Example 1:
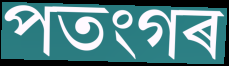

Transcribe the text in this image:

পতংগৰ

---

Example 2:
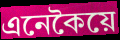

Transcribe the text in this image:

এনেকৈয়ে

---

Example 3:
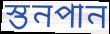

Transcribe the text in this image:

স্তনপান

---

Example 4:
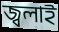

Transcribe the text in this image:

জ্বলাই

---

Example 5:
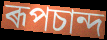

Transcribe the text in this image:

ৰূপচান্দ